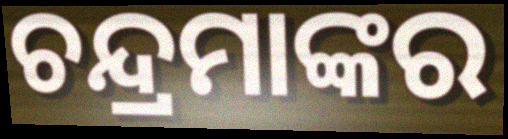
ଚନ୍ଦ୍ରମାଙ୍କର